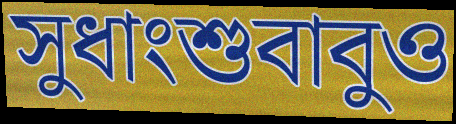
সুধাংশুবাবুও